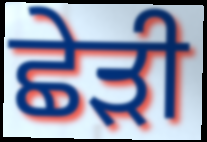
ਛੇੜੀ